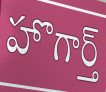
హొగార్త్